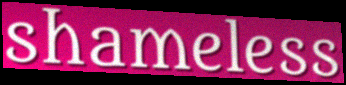
shameless